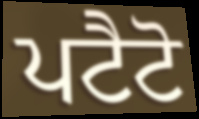
ਪਟੈਟੋ